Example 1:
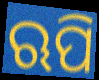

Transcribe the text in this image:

ଋପି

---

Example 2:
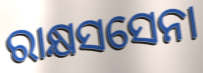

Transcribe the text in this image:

ରାକ୍ଷସସେନା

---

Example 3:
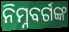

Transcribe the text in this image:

ନିମ୍ନବର୍ଗଙ୍କ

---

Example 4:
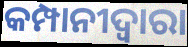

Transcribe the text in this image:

କମ୍ପାନୀଦ୍ୱାରା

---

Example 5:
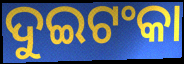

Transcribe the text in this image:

ଦୁଇଟଂକା